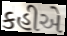
કહીએ